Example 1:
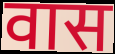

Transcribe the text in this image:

वास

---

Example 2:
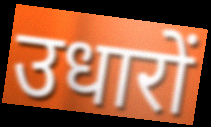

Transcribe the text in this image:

उधारों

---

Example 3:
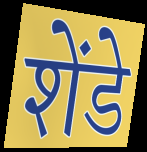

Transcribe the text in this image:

शेंडे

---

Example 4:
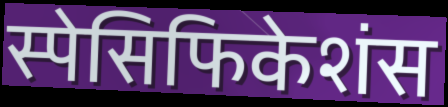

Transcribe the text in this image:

स्पेसिफिकेशंस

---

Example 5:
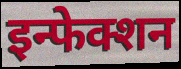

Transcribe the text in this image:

इन्फेक्शन